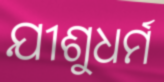
ଯୀଶୁଧର୍ମ